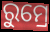
ରୁମ୍ରେ